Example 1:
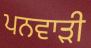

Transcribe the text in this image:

ਪਨਵਾੜੀ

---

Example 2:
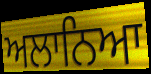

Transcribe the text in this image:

ਅਲਾਨਿਆ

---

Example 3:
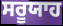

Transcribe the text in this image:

ਸਰੂਯਾਹ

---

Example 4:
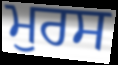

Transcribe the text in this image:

ਮੁਰਸ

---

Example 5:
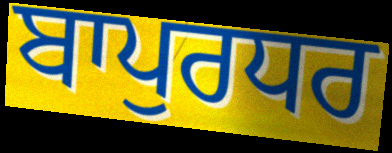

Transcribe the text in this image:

ਬਾਪੁਰਧਰ